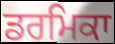
ਡਰਮਿਕਾ